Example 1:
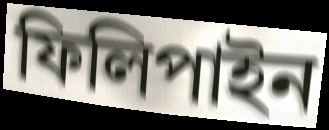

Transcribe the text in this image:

ফিলিপাইন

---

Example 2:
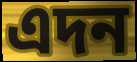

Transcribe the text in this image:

এদন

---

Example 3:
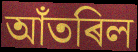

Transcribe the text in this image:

আঁতৰিল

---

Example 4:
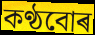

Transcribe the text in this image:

কণ্ঠবোৰ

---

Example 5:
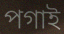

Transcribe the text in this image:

পগাই